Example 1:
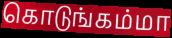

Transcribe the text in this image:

கொடுங்கம்மா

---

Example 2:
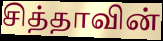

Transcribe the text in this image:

சித்தாவின்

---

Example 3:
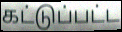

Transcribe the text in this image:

கட்டுப்பட்ட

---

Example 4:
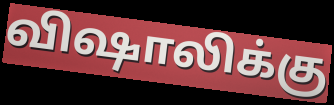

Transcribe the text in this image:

விஷாலிக்கு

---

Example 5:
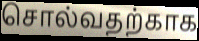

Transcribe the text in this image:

சொல்வதற்காக